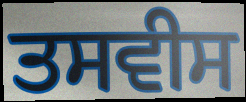
ਤਸਵੀਸ